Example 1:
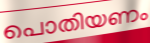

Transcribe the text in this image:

പൊതിയണം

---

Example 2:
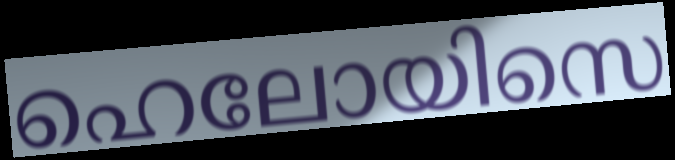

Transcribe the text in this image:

ഹെലോയിസെ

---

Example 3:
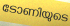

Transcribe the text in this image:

ടോണിയുടെ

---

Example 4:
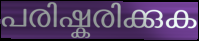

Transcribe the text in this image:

പരിഷ്കരിക്കുക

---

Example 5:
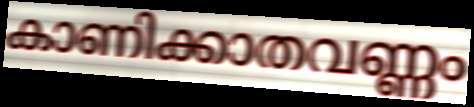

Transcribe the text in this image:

കാണിക്കാതവണ്ണം